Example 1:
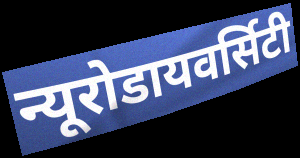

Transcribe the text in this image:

न्यूरोडायवर्सिटी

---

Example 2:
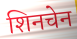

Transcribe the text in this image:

शिनचेन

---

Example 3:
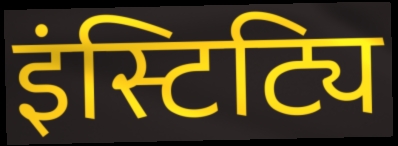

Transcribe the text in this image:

इंस्टिट्यि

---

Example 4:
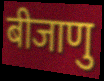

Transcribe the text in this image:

बीजाणु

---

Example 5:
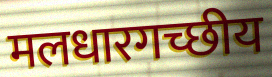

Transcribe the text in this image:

मलधारगच्छीय